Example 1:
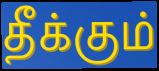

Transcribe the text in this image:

தீக்கும்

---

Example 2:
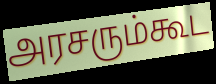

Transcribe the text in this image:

அரசரும்கூட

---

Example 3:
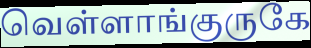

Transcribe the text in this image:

வெள்ளாங்குருகே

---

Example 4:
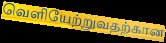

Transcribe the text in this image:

வெளியேற்றுவதற்கான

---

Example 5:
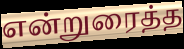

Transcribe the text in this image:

என்றுரைத்த